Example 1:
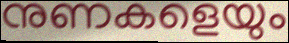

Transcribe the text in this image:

നുണകളെയും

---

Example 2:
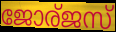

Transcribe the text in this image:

ജോര്ജസ്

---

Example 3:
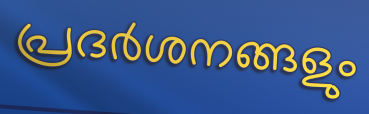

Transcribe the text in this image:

പ്രദർശനങ്ങളും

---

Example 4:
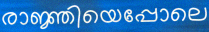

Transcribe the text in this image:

രാജ്ഞിയെപ്പോലെ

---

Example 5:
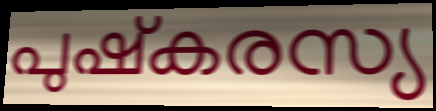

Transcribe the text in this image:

പുഷ്കരസ്യ